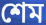
শেম